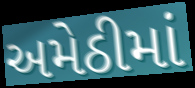
અમેઠીમાં